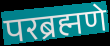
परब्रह्मणे